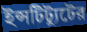
ইন্সটিট্যুটের